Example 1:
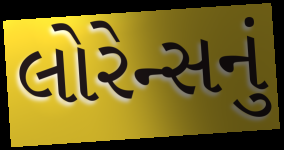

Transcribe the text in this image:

લોરેન્સનું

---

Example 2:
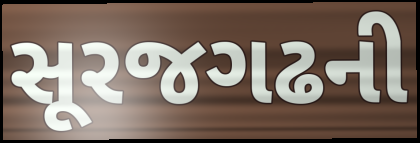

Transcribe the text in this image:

સૂરજગઢની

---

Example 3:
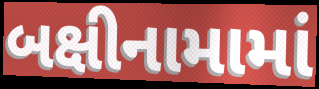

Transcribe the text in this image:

બક્ષીનામામાં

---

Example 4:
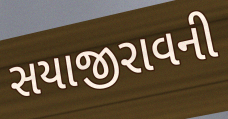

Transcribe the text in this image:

સયાજીરાવની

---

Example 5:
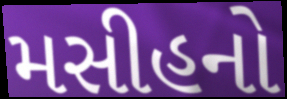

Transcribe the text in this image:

મસીહનો